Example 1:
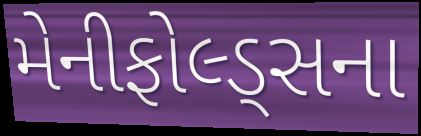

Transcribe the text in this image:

મેનીફોલ્ડ્સના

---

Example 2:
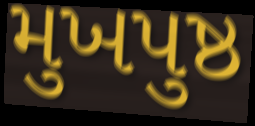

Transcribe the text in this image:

મુખપુષ્ઠ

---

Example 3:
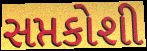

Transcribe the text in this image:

સપ્તકોશી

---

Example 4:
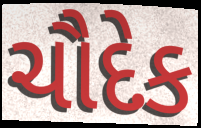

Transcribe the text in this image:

ચૌદેક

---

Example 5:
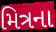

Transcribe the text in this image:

મિત્રના